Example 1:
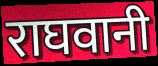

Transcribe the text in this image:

राघवानी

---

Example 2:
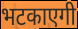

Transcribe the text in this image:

भटकाएगी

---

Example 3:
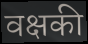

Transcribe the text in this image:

वक्षकी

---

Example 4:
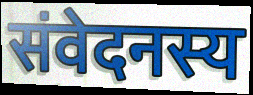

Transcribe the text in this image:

संवेदनस्य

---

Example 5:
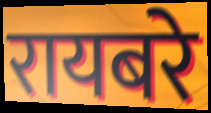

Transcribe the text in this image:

रायबरे